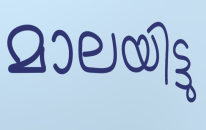
മാലയിട്ടു